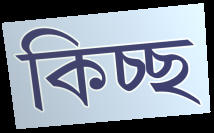
কিচ্ছ